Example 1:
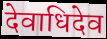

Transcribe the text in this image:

देवाधिदेव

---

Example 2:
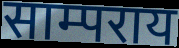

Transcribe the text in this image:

साम्पराय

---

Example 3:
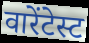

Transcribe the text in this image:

वारेंटेस्ट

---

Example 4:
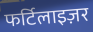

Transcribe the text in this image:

फर्टिलाइज़र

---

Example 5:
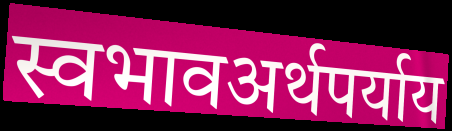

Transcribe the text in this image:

स्वभावअर्थपर्याय